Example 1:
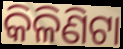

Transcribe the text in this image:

କିଳିଣିଟା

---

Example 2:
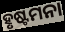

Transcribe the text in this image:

ହୃଷ୍ଟମନା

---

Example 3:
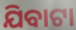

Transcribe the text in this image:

ଯିବାଟା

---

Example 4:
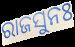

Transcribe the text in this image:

ରାଜସୁନଃ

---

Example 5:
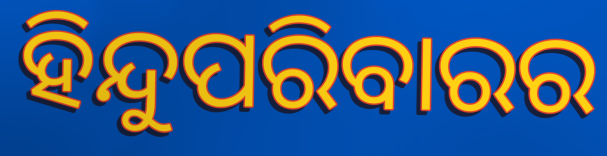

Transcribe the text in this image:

ହିନ୍ଦୁପରିବାରର